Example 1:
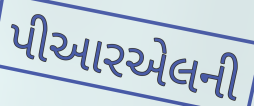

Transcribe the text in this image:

પીઆરએલની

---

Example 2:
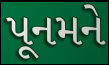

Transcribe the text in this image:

પૂનમને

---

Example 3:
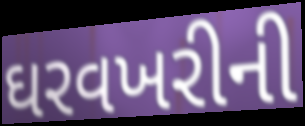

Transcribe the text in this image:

ઘરવખરીની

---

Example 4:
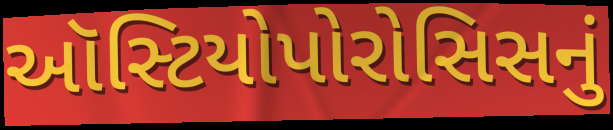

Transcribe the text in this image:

ઑસ્ટિયોપોરોસિસનું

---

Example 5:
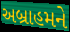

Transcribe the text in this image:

અબ્રાહમને